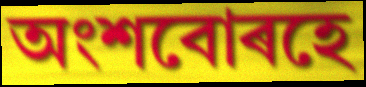
অংশবোৰহে